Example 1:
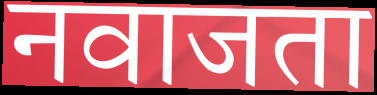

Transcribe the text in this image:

नवाजता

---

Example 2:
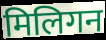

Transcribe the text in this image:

मिलिगन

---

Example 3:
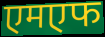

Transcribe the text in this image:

एमएफ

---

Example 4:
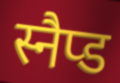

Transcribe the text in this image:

स्नैप्ड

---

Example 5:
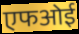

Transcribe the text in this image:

एफओई